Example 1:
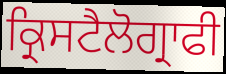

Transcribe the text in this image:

ਕ੍ਰਿਸਟੈਲੋਗ੍ਰਾਫੀ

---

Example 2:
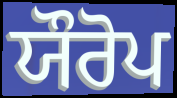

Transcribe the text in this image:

ਯੌਰੋਪ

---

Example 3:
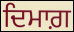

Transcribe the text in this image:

ਦਿਮਾਗ਼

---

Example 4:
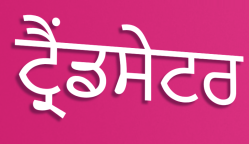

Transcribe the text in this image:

ਟ੍ਰੈਂਡਸੇਟਰ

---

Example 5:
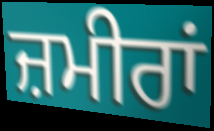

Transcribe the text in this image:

ਜ਼ਮੀਰਾਂ